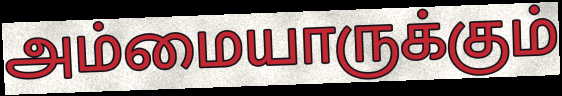
அம்மையாருக்கும்